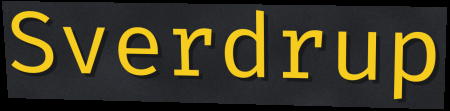
Sverdrup